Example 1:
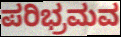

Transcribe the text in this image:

ಪರಿಭ್ರಮವ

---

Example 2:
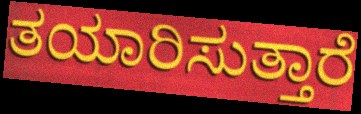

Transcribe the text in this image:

ತಯಾರಿಸುತ್ತಾರೆ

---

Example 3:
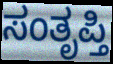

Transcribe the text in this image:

ಸಂತೃಪ್ತಿ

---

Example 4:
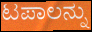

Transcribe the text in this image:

ಟಪಾಲನ್ನು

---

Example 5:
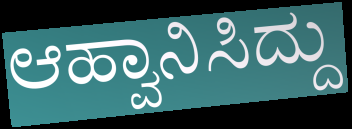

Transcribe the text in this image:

ಆಹ್ವಾನಿಸಿದ್ದು